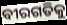
ବୀରଗତିକୁ